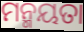
ମନ୍ମୟତା